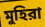
মুহিরা